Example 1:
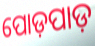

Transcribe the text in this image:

ପୋଡ଼ପାଡ଼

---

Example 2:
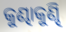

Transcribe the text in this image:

କୁଣ୍ଢାକୁଣ୍ଢି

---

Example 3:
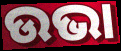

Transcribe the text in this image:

ଉଭା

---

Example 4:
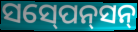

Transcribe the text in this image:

ସସ୍‍ପେନ୍‍ସନ୍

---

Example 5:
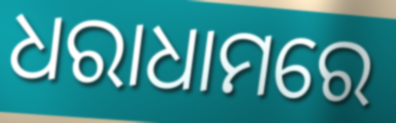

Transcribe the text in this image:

ଧରାଧାମରେ